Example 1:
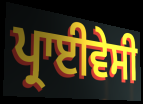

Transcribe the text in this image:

ਪ੍ਰਾਈਵੇਸੀ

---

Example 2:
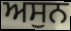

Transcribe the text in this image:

ਅਸੁਨ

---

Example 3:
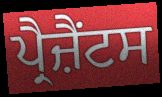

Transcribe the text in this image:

ਪ੍ਰੈਜ਼ੈਂਟਸ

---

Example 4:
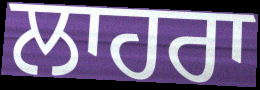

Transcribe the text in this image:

ਲਾਹਰਾ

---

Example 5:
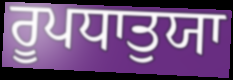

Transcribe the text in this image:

ਰੂਪਧਾਤੁਯਾ